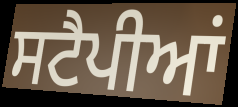
ਸਟੈਪੀਆਂ